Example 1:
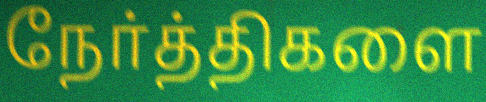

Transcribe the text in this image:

நேர்த்திகளை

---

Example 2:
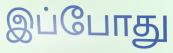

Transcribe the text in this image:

இப்போது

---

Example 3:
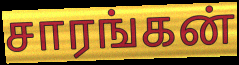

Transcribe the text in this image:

சாரங்கன்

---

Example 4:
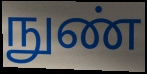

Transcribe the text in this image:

நுண்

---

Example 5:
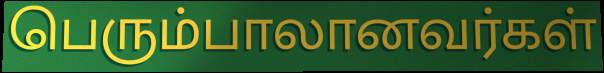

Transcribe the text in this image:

பெரும்பாலானவர்கள்